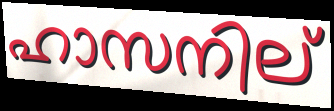
ഹാസനില്